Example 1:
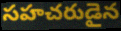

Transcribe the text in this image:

సహచరుడైన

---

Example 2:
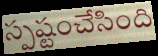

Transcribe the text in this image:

స్పష్టంచేసింది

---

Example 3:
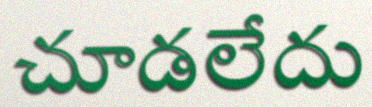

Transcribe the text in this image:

చూడలేదు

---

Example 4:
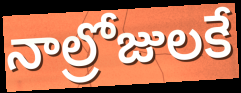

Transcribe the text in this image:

నాల్రోజులకే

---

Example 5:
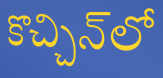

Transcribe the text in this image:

కొచ్చిన్‌లో